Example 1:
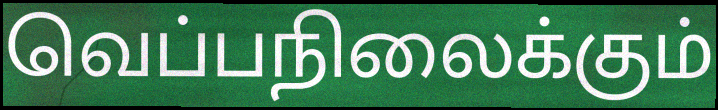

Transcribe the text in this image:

வெப்பநிலைக்கும்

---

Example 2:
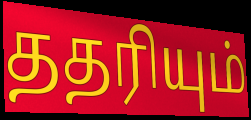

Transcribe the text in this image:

ததரியும்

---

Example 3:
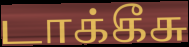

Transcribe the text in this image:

டாக்கீசு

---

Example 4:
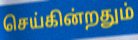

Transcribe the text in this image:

செய்கின்றதும்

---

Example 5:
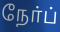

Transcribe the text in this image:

நேர்ப்